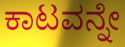
ಕಾಟವನ್ನೇ